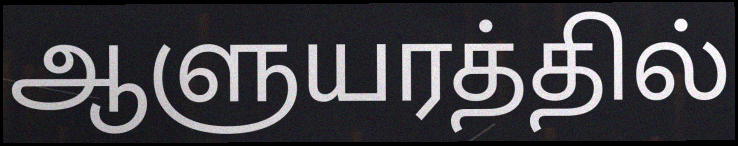
ஆளுயரத்தில்